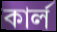
কাৰ্ল